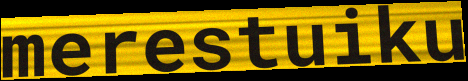
merestuiku